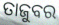
ତାଜୁବର